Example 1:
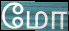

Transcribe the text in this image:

மோ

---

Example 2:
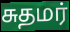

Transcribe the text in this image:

சுதமர்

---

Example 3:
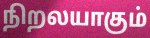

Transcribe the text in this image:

நிறலயாகும்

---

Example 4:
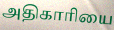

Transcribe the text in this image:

அதிகாரியை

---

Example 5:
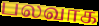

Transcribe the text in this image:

பலவாக